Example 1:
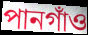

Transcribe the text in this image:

পানগাঁও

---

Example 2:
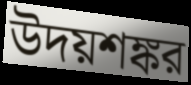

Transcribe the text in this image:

উদয়শঙ্কর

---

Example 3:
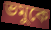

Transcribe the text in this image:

ভমুকে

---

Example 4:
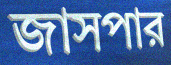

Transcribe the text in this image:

জাসপার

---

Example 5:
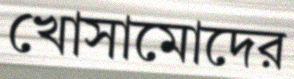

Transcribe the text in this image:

খোসামোদের